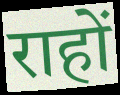
राहों